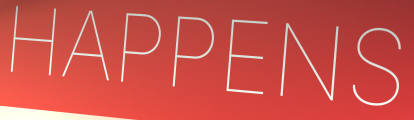
HAPPENS